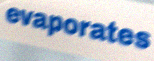
evaporates